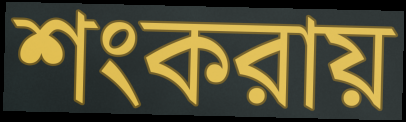
শংকরায়